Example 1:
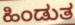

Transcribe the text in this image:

ಹಿಂಡುತ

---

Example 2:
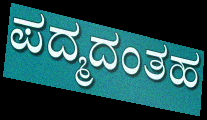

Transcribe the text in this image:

ಪದ್ಮದಂತಹ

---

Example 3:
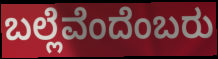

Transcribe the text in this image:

ಬಲ್ಲೆವೆಂದೆಂಬರು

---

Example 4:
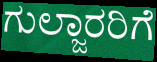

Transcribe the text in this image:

ಗುಲ್ಜಾರರಿಗೆ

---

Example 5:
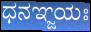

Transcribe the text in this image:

ಧನಞ್ಜಯಃ